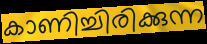
കാണിച്ചിരിക്കുന്ന